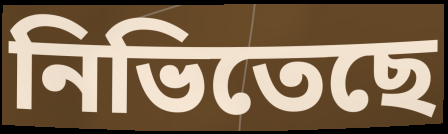
নিভিতেছে